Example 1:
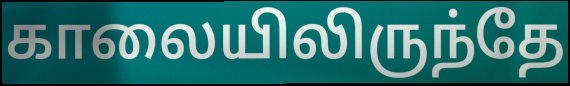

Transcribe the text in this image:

காலையிலிருந்தே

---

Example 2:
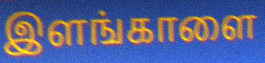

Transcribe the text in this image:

இளங்காளை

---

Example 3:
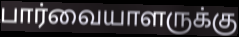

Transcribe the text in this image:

பார்வையாளருக்கு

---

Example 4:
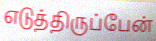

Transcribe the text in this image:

எடுத்திருப்பேன்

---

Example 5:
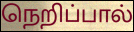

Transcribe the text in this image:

நெறிப்பால்